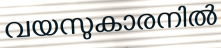
വയസുകാരനിൽ